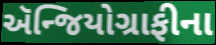
ઍન્જિયોગ્રાફીના